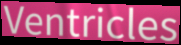
Ventricles